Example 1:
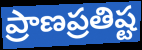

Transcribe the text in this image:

ప్రాణప్రతిష్ట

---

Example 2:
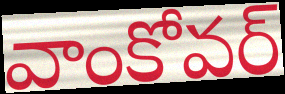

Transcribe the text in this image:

వాంకోవర్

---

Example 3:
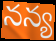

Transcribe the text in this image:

నన్య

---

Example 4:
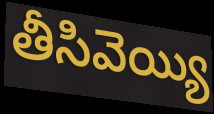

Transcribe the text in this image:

తీసివెయ్యి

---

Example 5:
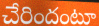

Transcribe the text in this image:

చేరిందంటూ